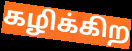
கழிக்கிற